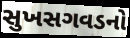
સુખસગવડનો